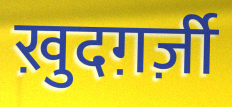
ख़ुदग़र्ज़ी